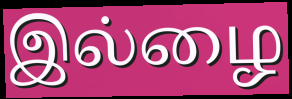
இல்ழை